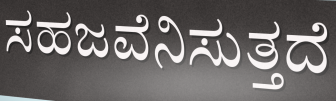
ಸಹಜವೆನಿಸುತ್ತದೆ